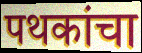
पथकांचा